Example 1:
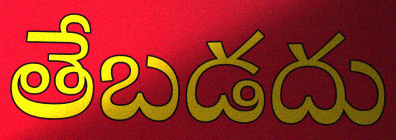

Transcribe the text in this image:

తేబడదు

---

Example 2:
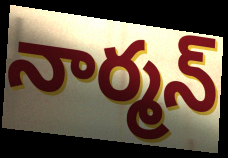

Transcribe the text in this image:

నార్మన్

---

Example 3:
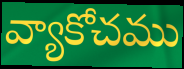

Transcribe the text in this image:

వ్యాకోచము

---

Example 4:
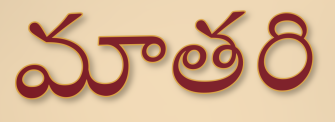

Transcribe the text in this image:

మాతరి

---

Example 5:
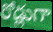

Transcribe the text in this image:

రోడ్లుగా